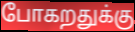
போகறதுக்கு